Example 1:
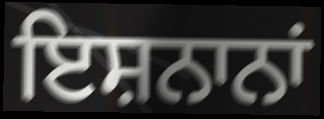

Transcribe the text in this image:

ਇਸ਼ਨਾਨਾਂ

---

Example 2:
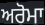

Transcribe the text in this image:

ਅਰੋਮਾ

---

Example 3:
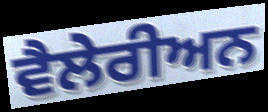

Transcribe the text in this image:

ਵੈਲੇਰੀਅਨ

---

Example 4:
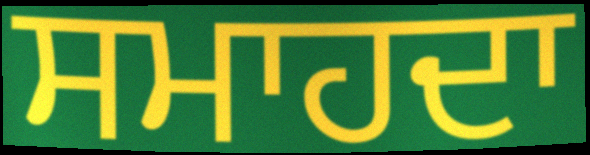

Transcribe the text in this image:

ਸਮਾਹਦਾ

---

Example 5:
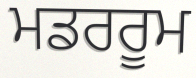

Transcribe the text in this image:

ਮਡਰਰੂਮ